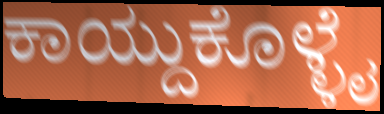
ಕಾಯ್ದುಕೊಳ್ಳೈ